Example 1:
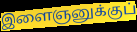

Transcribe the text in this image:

இளைஞனுக்குப்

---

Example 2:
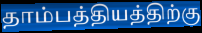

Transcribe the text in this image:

தாம்பத்தியத்திற்கு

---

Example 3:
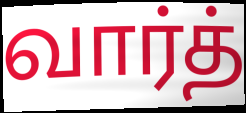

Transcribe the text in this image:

வார்த்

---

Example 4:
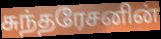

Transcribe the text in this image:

சுந்தரேசனின்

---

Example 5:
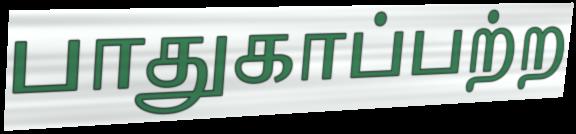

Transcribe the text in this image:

பாதுகாப்பற்ற